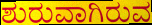
ಶುರುವಾಗಿರುವ